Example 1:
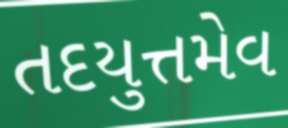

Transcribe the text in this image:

તદયુત્તમેવ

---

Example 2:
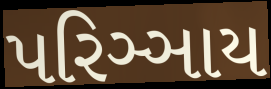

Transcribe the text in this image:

પરિઞ્ઞાય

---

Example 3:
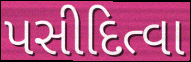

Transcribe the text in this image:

પસીદિત્વા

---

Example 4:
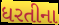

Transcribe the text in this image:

ધરતીના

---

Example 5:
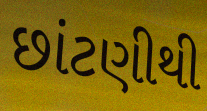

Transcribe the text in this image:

છાંટણીથી